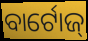
ବାର୍ଟୋଜ୍